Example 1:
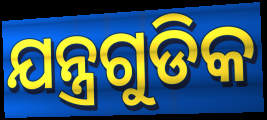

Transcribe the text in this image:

ଯନ୍ତ୍ରଗୁଡିକ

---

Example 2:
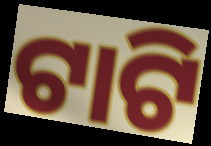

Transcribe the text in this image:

ଟାଟି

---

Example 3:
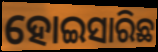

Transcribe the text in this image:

ହୋଇସାରିଛ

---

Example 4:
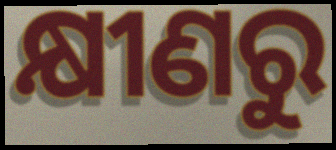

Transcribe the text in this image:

କ୍ଷୀଣରୁ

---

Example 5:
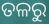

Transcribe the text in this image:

ତଳରୁ